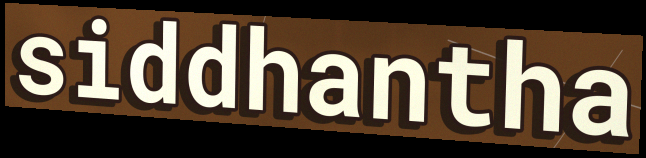
siddhantha